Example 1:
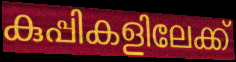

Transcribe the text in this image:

കുപ്പികളിലേക്ക്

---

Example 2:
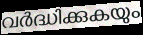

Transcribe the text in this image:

വർദ്ധിക്കുകയും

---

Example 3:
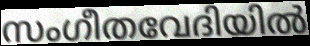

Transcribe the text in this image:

സംഗീതവേദിയിൽ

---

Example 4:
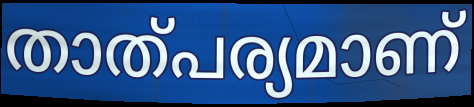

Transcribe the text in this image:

താത്പര്യമാണ്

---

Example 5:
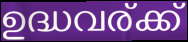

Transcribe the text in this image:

ഉദ്ധവര്ക്ക്